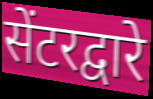
सेंटरद्वारे